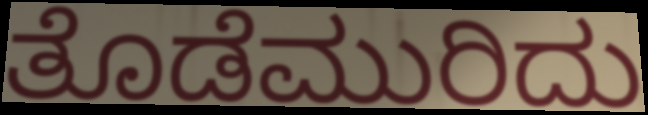
ತೊಡೆಮುರಿದು